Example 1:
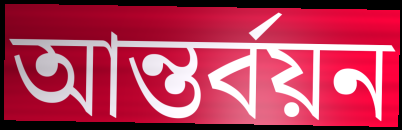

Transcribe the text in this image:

আন্তর্বয়ন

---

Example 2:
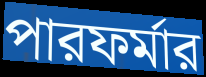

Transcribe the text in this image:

পারফর্মার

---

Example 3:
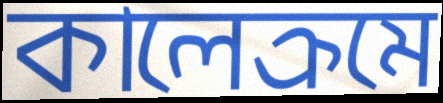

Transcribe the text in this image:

কালেক্রমে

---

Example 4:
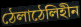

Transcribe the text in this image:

ঠেলাঠেলিহীন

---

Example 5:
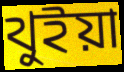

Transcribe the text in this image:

থুইয়া